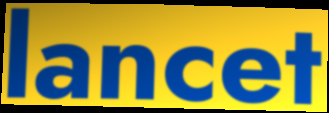
lancet